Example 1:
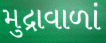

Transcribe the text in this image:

મુદ્રાવાળાં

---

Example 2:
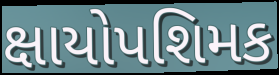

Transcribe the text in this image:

ક્ષાયોપશિમક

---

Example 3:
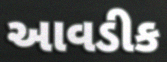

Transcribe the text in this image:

આવડીક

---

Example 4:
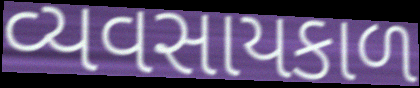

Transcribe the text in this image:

વ્યવસાયકાળ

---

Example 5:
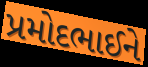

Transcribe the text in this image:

પ્રમોદભાઈને